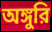
অঙ্গুরি